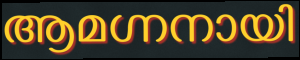
ആമഗ്നനായി